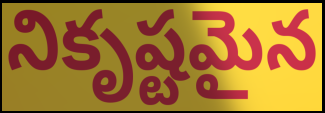
నికృష్టమైన